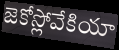
జెకోస్లోవేకియా